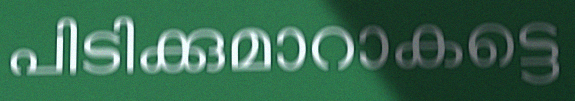
പിടിക്കുമാറാകട്ടെ